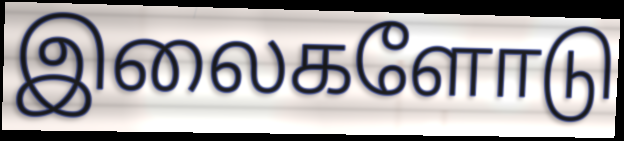
இலைகளோடு